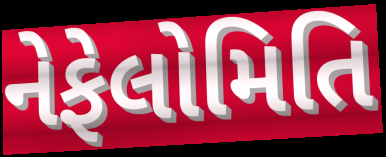
નેફેલોમિતિ